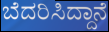
ಬೆದರಿಸಿದ್ದಾನೆ